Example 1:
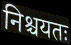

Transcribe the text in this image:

निश्चयतः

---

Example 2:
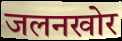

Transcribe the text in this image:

जलनखोर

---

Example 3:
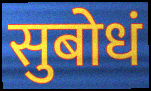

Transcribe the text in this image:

सुबोधं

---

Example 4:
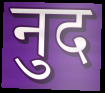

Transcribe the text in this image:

नुद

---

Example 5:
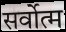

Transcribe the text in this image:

सर्वोत्म